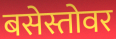
बसेस्तोवर